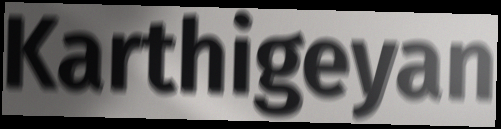
Karthigeyan